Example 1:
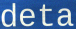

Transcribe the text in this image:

deta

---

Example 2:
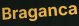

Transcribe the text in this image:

Braganca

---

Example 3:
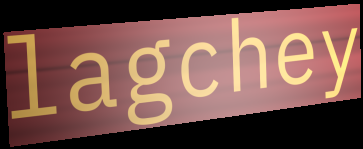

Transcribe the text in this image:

lagchey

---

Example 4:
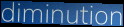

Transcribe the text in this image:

diminution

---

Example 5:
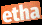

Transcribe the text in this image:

etha